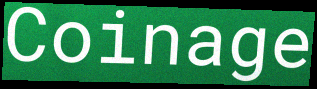
Coinage